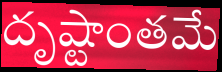
దృష్టాంతమే